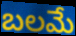
బలమే